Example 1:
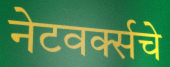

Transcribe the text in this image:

नेटवर्क्सचे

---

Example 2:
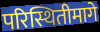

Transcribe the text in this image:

परिस्थितीमागे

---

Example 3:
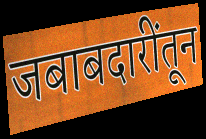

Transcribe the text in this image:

जबाबदारींतून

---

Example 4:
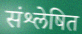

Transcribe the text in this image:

संश्लेषित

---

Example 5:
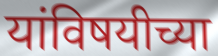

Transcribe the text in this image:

यांविषयीच्या